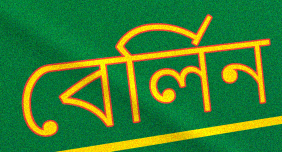
বের্লিন